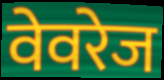
वेवरेज